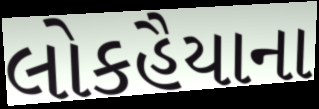
લોકહૈયાના